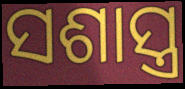
ସଶାସ୍ତ୍ର